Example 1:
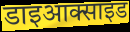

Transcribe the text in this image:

डाइआक्साइड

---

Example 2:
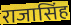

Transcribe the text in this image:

राजासिंह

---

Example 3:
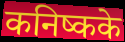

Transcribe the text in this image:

कनिष्कके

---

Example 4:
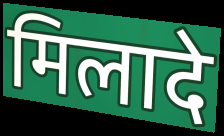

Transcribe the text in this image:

मिलादे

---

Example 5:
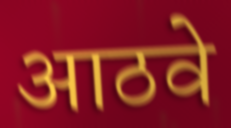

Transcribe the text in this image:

आठवे